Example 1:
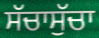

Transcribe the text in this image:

ਸੱਚਾਸੁੱਚਾ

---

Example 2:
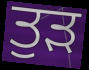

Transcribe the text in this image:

ਤੁੜ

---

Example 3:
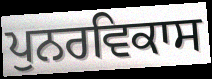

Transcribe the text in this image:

ਪੁਨਰਵਿਕਾਸ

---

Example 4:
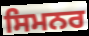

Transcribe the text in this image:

ਸਿਮਨਰ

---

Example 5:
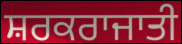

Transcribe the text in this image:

ਸ਼ਰਕਰਾਜਾਤੀ